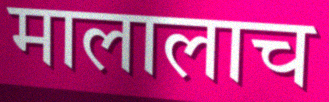
मालालाच